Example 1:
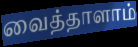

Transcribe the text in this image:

வைத்தாளாம்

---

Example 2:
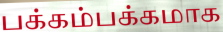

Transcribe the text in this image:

பக்கம்பக்கமாக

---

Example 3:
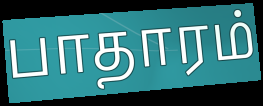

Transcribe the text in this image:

பாதாரம்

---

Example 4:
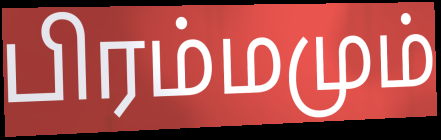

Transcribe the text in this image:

பிரம்மமும்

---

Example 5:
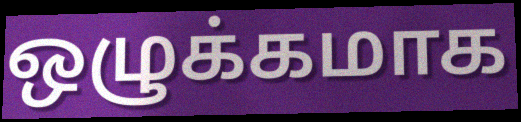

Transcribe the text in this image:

ஒழுக்கமாக